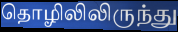
தொழிலிலிருந்து